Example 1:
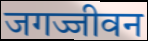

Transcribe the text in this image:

जगज्जीवन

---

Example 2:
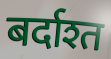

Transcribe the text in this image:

बर्दाश्त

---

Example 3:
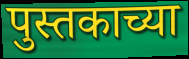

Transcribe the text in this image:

पुस्तकाच्या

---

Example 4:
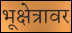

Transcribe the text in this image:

भूक्षेत्रावर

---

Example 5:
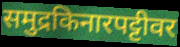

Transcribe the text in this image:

समुद्रकिनारपट्टीवर